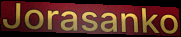
Jorasanko